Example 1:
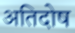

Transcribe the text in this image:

अतिदोष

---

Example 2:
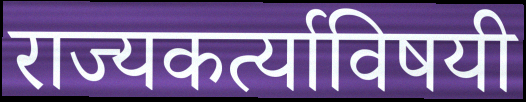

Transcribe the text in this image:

राज्यकर्त्याविषयी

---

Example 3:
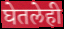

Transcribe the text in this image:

घेतलेही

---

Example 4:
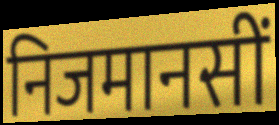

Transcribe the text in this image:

निजमानसीं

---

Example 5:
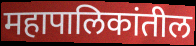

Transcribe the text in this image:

महापालिकांतील